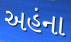
અહંના